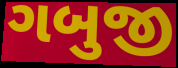
ગબુજી